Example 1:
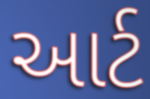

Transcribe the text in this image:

આર્ટ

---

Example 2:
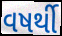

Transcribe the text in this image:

વષર્થી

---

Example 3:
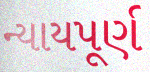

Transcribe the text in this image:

ન્યાયપૂર્ણ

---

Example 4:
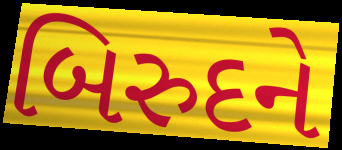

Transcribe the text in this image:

બિરુદને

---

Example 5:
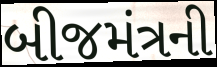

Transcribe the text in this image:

બીજમંત્રની